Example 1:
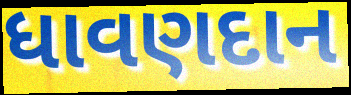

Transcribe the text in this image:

ધાવણદાન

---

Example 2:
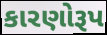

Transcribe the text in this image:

કારણોરૂપ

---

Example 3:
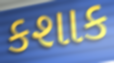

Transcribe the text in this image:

કશાક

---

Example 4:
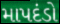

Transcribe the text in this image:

માપદંડો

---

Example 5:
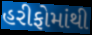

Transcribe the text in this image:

હરીફોમાંથી